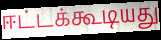
ஈட்டக்கூடியது